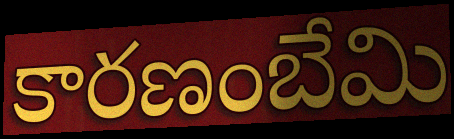
కారణంబేమి